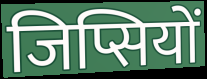
जिप्सियों